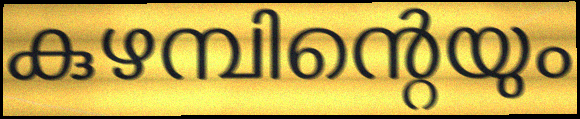
കുഴമ്പിന്റെയും